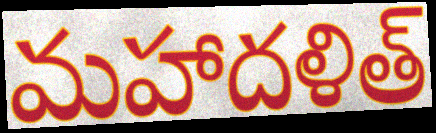
మహాదళిత్